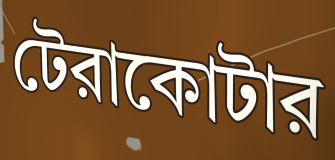
টেরাকোটার